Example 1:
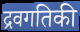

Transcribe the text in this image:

द्रवगतिकी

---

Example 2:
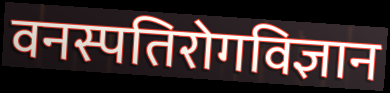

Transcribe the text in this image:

वनस्पतिरोगविज्ञान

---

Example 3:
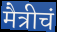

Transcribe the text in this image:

मैत्रीचं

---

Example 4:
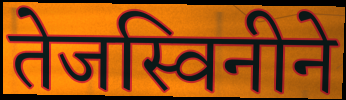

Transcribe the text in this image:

तेजस्विनीने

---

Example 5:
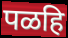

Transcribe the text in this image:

पळहि